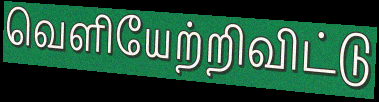
வெளியேற்றிவிட்டு